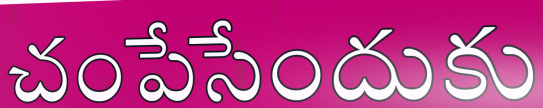
చంపేసేందుకు